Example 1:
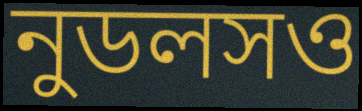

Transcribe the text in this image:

নুডলসও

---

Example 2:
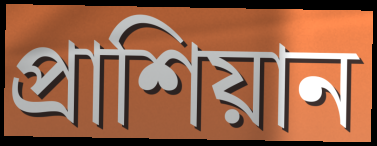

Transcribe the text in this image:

প্রাশিয়ান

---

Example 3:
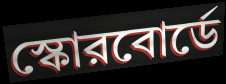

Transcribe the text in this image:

স্কোরবোর্ডে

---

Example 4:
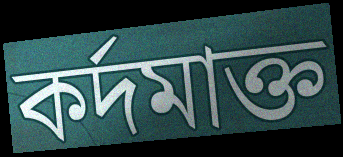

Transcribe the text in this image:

কর্দমাক্ত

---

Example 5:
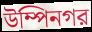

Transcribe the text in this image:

উম্পিনগর